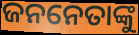
ଜନନେତାଙ୍କୁ